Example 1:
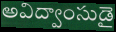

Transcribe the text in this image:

అవిద్వాంసుడై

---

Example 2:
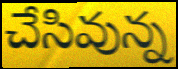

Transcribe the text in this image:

చేసివున్న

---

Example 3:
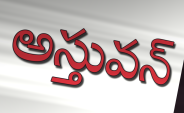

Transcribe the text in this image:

అస్తువన్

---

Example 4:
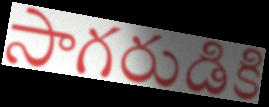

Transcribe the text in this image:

సాగరుడికి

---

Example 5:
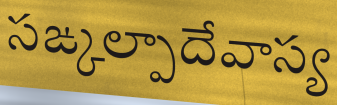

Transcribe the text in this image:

సఙ్కల్పాదేవాస్య